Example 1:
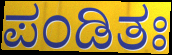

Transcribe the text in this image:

ಪಂಡಿತಃ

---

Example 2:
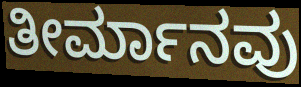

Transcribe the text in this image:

ತೀರ್ಮಾನವು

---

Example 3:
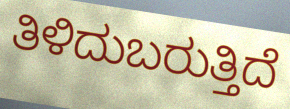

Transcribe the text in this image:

ತಿಳಿದುಬರುತ್ತಿದೆ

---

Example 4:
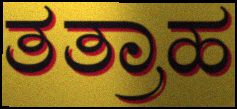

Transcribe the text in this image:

ತತ್ರಾಹ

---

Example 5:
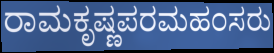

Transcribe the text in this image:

ರಾಮಕೃಷ್ಣಪರಮಹಂಸರು